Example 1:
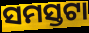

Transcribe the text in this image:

ସମସ୍ତଟା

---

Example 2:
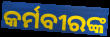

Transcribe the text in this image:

କର୍ମବୀରଙ୍କ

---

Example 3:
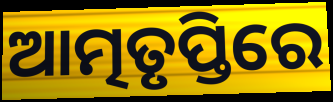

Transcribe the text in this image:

ଆତ୍ମତୃପ୍ତିରେ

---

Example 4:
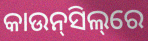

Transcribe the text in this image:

କାଉନ୍‌ସିଲ୍‌ରେ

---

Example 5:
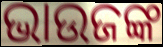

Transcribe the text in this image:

ଭାଉଜଙ୍କ